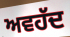
ਅਵਹੱਦ